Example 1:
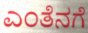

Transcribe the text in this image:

ಎಂತೆನಗೆ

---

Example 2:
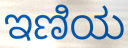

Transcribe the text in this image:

ಇಣಿಯ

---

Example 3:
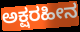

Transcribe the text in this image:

ಅಕ್ಷರಹೀನ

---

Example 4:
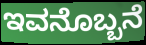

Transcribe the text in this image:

ಇವನೊಬ್ಬನೆ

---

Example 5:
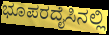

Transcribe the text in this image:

ಭೂಪರದೈಸಿನಲ್ಲಿ